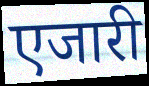
एजारी